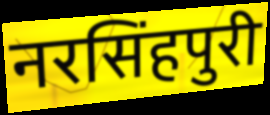
नरसिंहपुरी